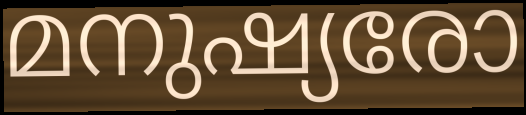
മനുഷ്യരോ